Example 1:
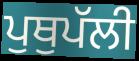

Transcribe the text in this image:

ਪੁਥੁਪੱਲੀ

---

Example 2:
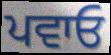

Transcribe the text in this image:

ਪਵਾਓ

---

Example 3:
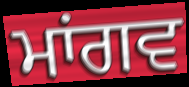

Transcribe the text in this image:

ਮਾਂਗਵ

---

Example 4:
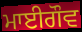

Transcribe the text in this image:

ਮਾਈਗੌਵ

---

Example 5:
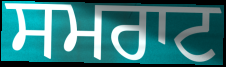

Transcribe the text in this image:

ਸਮਰਾਟ